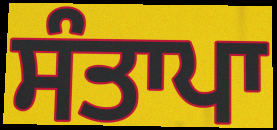
ਸੰਤਾਪਾ